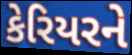
કેરિયરને